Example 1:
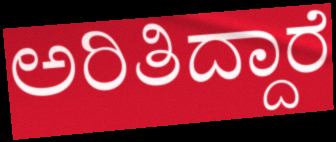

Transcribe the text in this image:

ಅರಿತಿದ್ದಾರೆ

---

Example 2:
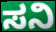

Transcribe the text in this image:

ಸನಿ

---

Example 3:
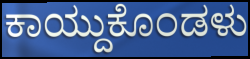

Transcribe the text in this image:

ಕಾಯ್ದುಕೊಂಡಳು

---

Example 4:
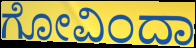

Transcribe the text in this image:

ಗೋವಿಂದಾ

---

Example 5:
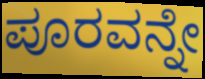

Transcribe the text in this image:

ಪೂರವನ್ನೇ